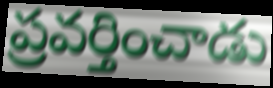
ప్రవర్తించాడు